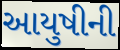
આયુષીની